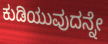
ಕುಡಿಯುವುದನ್ನೇ